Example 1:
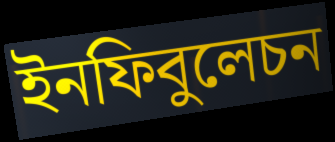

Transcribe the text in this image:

ইনফিবুলেচন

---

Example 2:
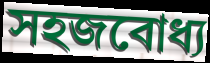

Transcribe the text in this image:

সহজবোধ্য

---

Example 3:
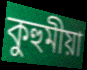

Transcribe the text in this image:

কুহুমীয়া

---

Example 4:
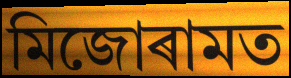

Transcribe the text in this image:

মিজোৰামত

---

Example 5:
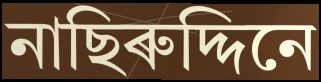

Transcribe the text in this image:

নাছিৰুদ্দিনে